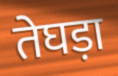
तेघड़ा